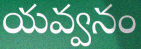
యవ్వనం